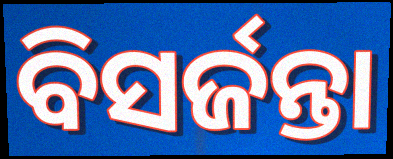
ବିସର୍ଜନ୍ତା